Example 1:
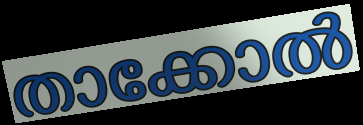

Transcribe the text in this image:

താക്കോൽ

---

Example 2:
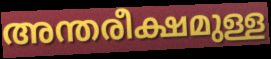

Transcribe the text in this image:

അന്തരീക്ഷമുള്ള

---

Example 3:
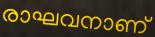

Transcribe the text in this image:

രാഘവനാണ്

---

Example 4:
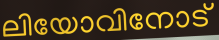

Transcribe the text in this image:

ലിയോവിനോട്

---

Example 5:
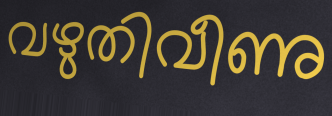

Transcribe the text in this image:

വഴുതിവീണു